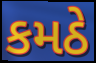
કમઠે